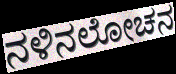
ನಳಿನಲೋಚನ